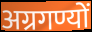
अग्रगण्यों